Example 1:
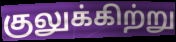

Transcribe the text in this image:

குலுக்கிற்று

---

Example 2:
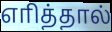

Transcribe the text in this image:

எரித்தால்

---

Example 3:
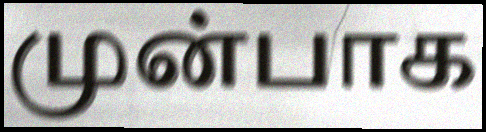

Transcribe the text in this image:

முன்பாக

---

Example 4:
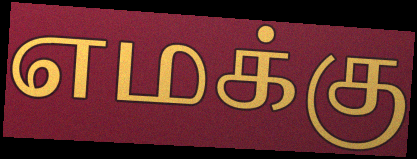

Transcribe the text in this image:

எமக்கு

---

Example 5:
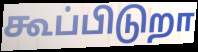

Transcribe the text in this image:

கூப்பிடுறா